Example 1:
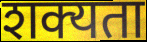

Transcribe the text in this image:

शक्‍यता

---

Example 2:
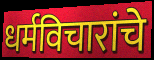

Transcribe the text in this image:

धर्मविचारांचे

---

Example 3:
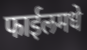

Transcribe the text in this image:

फाईलमधे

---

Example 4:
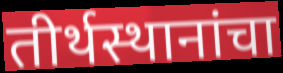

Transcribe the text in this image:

तीर्थस्थानांचा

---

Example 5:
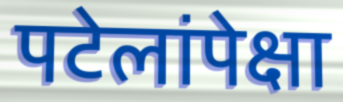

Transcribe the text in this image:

पटेलांपेक्षा